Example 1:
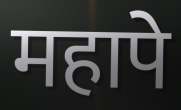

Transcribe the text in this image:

महापे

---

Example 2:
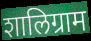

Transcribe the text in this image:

शालिग्राम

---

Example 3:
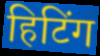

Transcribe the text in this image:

हिटिंग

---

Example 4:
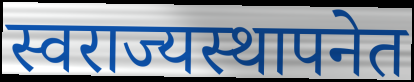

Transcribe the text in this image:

स्वराज्यस्थापनेत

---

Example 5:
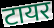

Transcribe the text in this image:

टायर